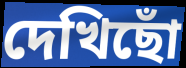
দেখিছোঁ